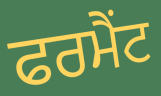
ਫਰਮੈਂਟ